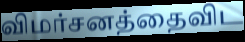
விமர்சனத்தைவிட